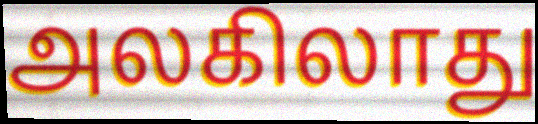
அலகிலாது